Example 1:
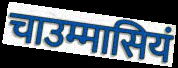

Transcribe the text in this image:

चाउम्मासियं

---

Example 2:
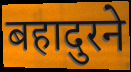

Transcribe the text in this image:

बहादुरने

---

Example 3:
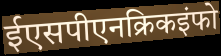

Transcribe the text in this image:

ईएसपीएनक्रिकइंफो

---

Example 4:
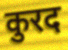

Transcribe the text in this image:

कुरद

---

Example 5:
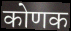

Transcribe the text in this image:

कोणक